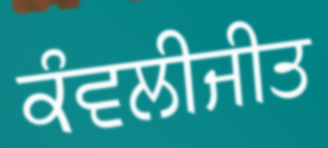
ਕੰਵਲੀਜੀਤ